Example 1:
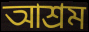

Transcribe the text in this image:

আশ্ৰম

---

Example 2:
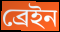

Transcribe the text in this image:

ব্ৰেইন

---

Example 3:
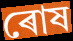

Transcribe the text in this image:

ৰোষ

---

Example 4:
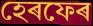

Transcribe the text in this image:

হেৰফেৰ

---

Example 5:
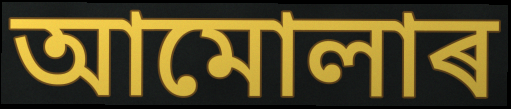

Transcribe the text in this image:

আমোলাৰ